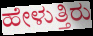
ಹೇಳುತ್ತಿರು